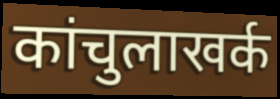
कांचुलाखर्क